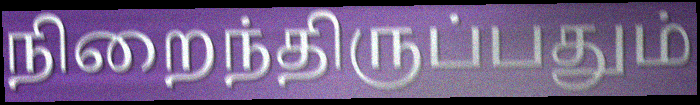
நிறைந்திருப்பதும்